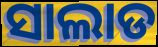
ସାଲାଡ